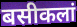
बसीकलां